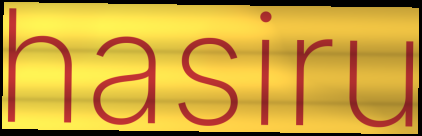
hasiru